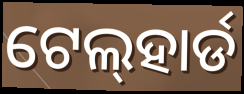
ଟେଲ୍‍ହାର୍ଡ